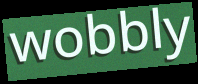
wobbly